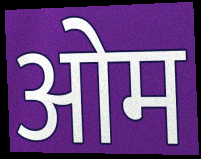
ओम